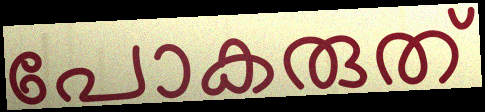
പോകരുത്